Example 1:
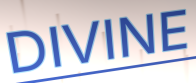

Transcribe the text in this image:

DIVINE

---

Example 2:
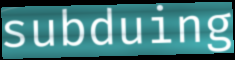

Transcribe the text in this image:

subduing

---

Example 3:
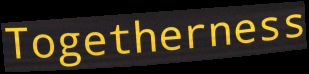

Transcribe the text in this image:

Togetherness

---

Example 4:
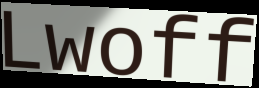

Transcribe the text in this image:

Lwoff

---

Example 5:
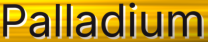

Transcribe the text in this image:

Palladium